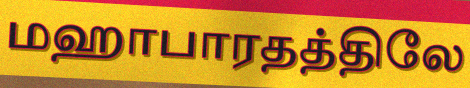
மஹாபாரதத்திலே